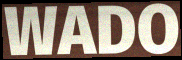
WADO